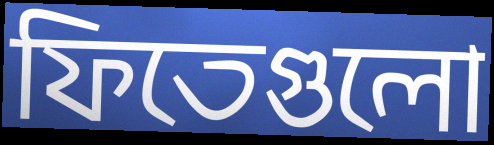
ফিতেগুলো